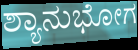
ಶ್ಯಾನುಭೋಗ